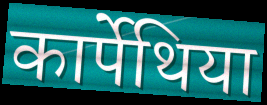
कार्पेथिया